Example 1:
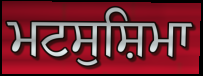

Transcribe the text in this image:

ਮਟਸੁਸ਼ਿਮਾ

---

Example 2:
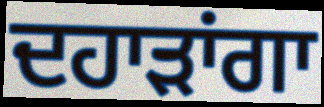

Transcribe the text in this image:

ਦਹਾੜਾਂਗਾ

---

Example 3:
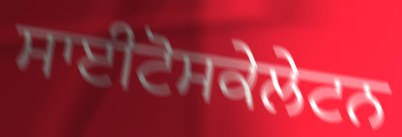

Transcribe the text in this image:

ਸਾਈਟੋਸਕੇਲੇਟਨ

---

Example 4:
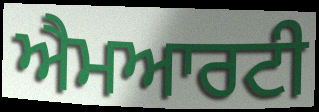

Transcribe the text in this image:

ਐਮਆਰਟੀ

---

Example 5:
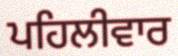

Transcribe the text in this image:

ਪਹਿਲੀਵਾਰ